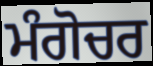
ਮੰਗੋਚਰ